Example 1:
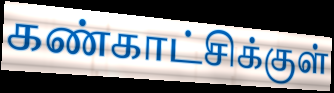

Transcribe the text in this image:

கண்காட்சிக்குள்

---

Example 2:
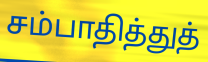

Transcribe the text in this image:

சம்பாதித்துத்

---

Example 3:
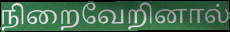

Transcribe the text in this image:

நிறைவேறினால்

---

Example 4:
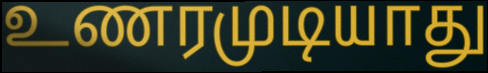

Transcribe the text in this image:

உணரமுடியாது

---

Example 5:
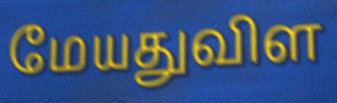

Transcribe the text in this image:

மேயதுவிள